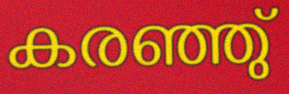
കരഞ്ഞു്